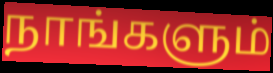
நாங்களும்